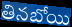
తినబోయి